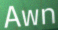
Awn